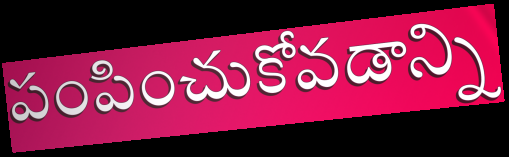
పంపించుకోవడాన్ని